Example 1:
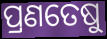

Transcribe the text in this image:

ପ୍ରଣତେଷୁ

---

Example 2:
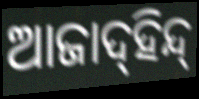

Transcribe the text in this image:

ଆଜାଦ୍‍ହିନ୍ଦ୍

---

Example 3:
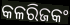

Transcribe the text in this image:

କଳରିଜକଂ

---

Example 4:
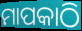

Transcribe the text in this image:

ମାପକାଠି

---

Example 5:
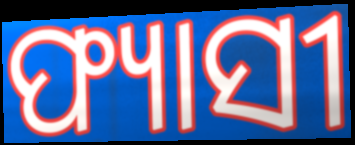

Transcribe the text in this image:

ଫ୍ୟାସୀ